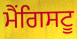
ਮੈਂਗਿਸਟੂ